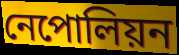
নেপোলিয়ন